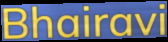
Bhairavi